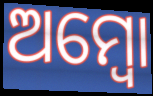
ଅମ୍ୱୋ